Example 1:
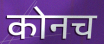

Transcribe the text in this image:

कोनच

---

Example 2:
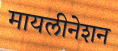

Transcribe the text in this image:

मायलीनेशन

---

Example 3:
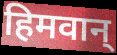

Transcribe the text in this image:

हिमवान्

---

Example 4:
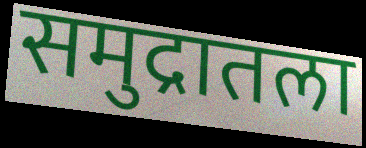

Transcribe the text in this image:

समुद्रातला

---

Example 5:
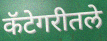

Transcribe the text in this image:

कॅटेगरीतले